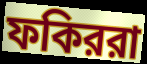
ফকিররা